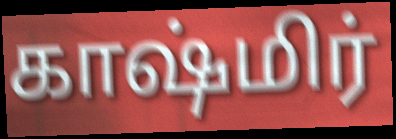
காஷ்மிர்